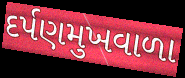
દર્પણમુખવાળા